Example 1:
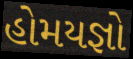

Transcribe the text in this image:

હોમયજ્ઞો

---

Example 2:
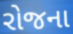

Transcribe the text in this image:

રોજના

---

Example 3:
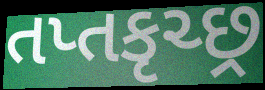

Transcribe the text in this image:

તપ્તકૃચ્છ્ર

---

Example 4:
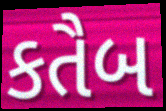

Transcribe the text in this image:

કતૈબ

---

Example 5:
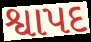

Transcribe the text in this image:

શ્વાપદ